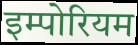
इम्पोरियम